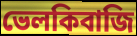
ভেলকিবাজি